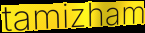
tamizham